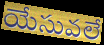
యేసువలే